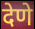
देणे